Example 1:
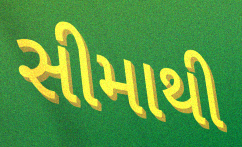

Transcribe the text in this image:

સીમાથી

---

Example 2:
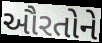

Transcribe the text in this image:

ઔરતોને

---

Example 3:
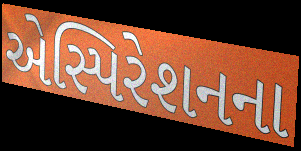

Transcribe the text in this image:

એસ્પિરેશનના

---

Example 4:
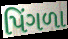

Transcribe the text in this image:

પિંગળા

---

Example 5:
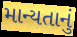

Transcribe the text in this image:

માન્યતાનું